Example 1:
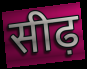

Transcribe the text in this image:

सीढ़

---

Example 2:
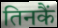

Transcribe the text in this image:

तिनकैं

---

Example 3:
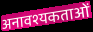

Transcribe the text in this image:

अनावश्यकताओं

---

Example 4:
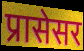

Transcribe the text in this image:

प्रासेसर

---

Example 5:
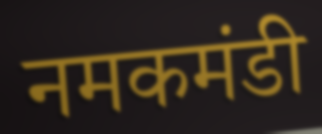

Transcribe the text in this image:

नमकमंडी